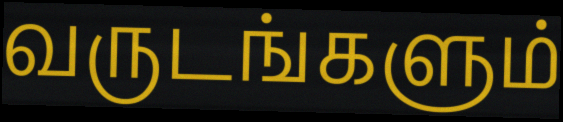
வருடங்களும்